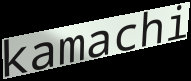
kamachi